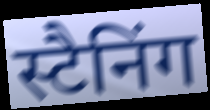
स्टैनिंग